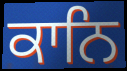
ਕਾਨਿ